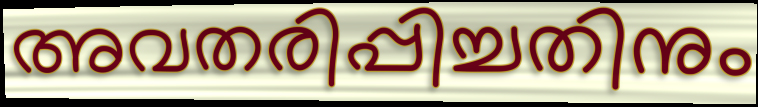
അവതരിപ്പിച്ചതിനും